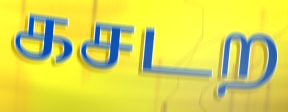
கசடற